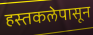
हस्तकलेपासून